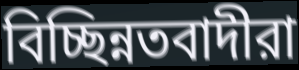
বিচ্ছিন্নতবাদীরা